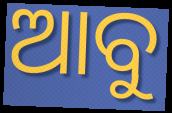
ଆବୁ